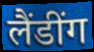
लैंडींग